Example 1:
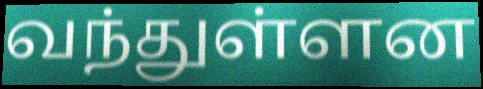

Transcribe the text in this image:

வந்துள்ளன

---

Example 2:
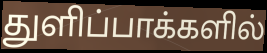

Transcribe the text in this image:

துளிப்பாக்களில்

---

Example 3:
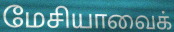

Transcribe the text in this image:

மேசியாவைக்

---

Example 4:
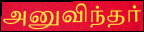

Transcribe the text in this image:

அனுவிந்தர்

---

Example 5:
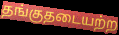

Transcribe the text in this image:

தங்குதடையற்ற